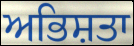
ਅਭਿਸ਼ਤਾ